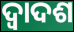
ଦ୍ଵାଦଶ